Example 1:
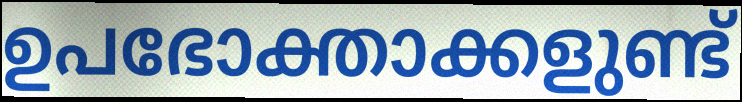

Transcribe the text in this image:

ഉപഭോക്താക്കളുണ്ട്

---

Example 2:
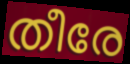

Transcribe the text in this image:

തീരേ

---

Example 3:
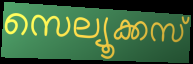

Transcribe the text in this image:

സെല്യൂക്കസ്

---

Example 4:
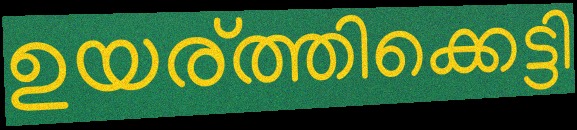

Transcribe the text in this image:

ഉയര്ത്തിക്കെട്ടി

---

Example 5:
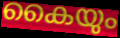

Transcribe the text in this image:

കൈയും